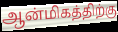
ஆன்மிகத்திற்கு